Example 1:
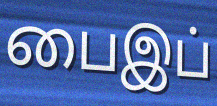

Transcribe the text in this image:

பைஇப்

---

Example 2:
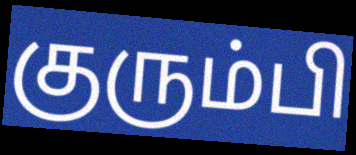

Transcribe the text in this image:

குரும்பி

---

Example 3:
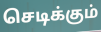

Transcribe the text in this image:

செடிக்கும்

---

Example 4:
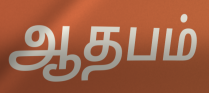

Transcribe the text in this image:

ஆதபம்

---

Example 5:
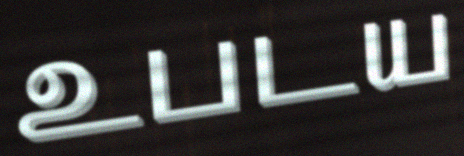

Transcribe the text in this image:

உபடய